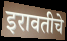
इरावतीचे